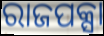
ରାଜପକ୍ସା